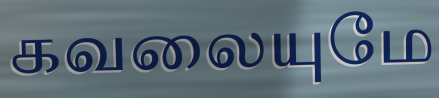
கவலையுமே